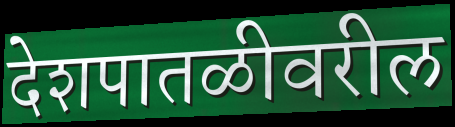
देशपातळीवरील